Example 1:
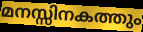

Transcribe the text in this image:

മനസ്സിനകത്തും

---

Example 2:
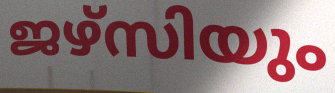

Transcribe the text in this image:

ജഴ്സിയും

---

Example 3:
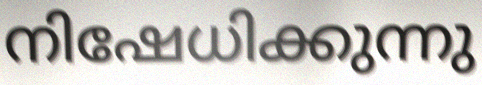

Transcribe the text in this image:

നിഷേധിക്കുന്നു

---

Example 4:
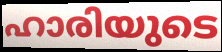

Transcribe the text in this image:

ഹാരിയുടെ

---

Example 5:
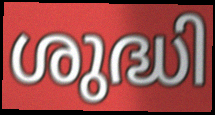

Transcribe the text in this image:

ശുദ്ധി